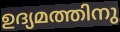
ഉദ്യമത്തിനു